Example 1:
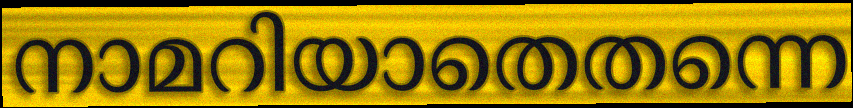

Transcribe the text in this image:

നാമറിയാതെതന്നെ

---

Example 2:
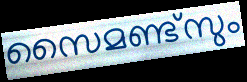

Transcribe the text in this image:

സൈമണ്ട്സും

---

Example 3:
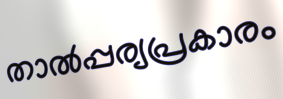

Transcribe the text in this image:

താൽപ്പര്യപ്രകാരം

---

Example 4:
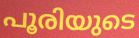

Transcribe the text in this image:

പൂരിയുടെ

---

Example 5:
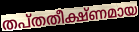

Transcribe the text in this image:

തപ്തതീക്ഷ്ണമായ